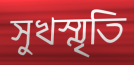
সুখস্মৃতি